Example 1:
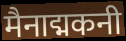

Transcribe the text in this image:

मैनाद्मकनी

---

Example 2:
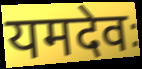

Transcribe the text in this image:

यमदेवः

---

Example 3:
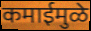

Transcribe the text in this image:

कमाईमुळे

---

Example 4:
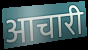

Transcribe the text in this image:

आचारी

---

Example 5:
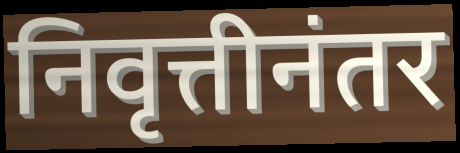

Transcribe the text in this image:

निवृत्तीनंतर